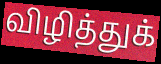
விழித்துக்